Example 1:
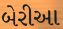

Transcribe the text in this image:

બેરીઆ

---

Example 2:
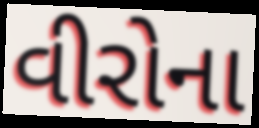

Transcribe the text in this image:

વીરોના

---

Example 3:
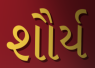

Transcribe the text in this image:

શૌર્ય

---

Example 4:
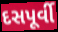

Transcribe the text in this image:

દસપૂર્વી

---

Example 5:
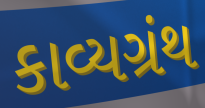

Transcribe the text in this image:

કાવ્યગ્રંથ